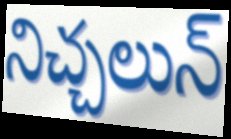
నిచ్చలున్